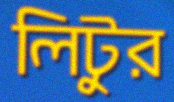
লিটুর